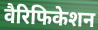
वैरिफिकेशन